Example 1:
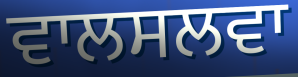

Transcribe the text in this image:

ਵਾਲਸਲਵਾ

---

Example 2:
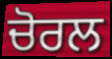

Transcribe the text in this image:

ਚੋਰਲ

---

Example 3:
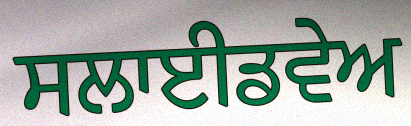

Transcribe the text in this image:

ਸਲਾਈਡਵੇਅ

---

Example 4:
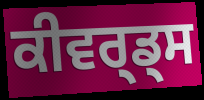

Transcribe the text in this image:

ਕੀਵਰ੍ਡ੍ਸ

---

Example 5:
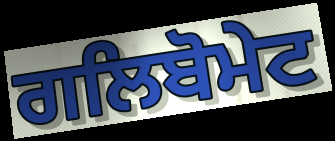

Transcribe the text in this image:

ਗਲਿਬੋਮੇਟ